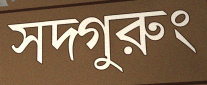
সদ্গুরুং